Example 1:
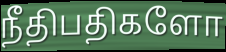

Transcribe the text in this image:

நீதிபதிகளோ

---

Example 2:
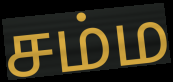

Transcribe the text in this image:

சம்ம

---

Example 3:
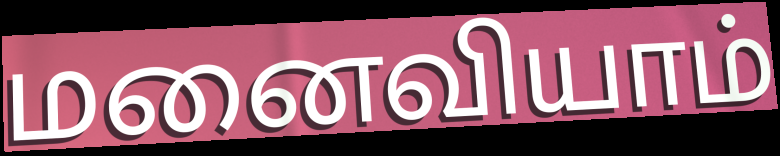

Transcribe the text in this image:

மனைவியாம்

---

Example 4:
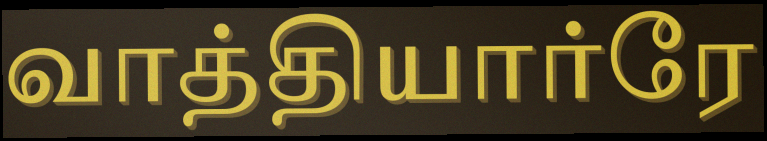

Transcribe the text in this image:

வாத்தியார்ரே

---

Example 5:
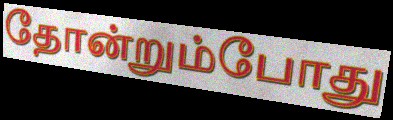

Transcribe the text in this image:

தோன்றும்போது